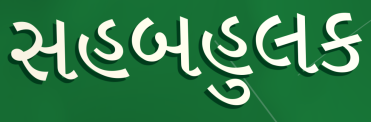
સહબહુલક